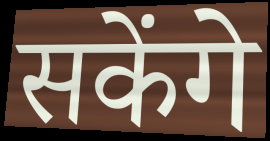
सकेंगे